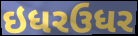
ઇધરઉધર